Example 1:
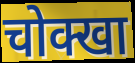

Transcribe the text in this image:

चोक्खा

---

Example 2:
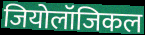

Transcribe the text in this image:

जियोलॉजिकल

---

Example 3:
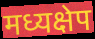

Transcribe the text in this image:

मध्यक्षेप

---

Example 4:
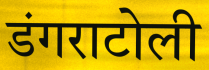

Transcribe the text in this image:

डंगराटोली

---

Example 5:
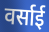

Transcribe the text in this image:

वर्साई